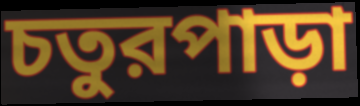
চতুরপাড়া